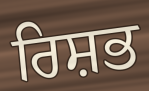
ਰਿਸ਼ਭ